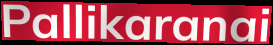
Pallikaranai